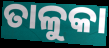
ତାଳୁକା